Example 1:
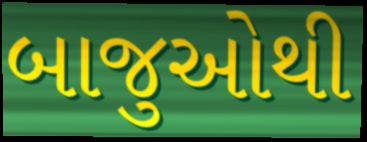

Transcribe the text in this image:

બાજુઓથી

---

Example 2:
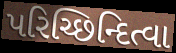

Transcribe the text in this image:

પરિચ્છિન્દિત્વા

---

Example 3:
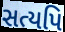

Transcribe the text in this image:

સત્યપિ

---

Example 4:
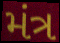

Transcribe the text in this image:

મંત્ર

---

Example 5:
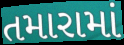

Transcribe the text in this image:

તમારામાં